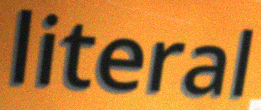
literal